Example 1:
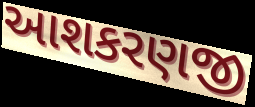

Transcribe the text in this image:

આશકરણજી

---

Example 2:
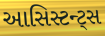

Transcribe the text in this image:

આસિસ્ટન્ટ્સ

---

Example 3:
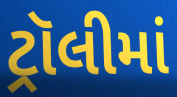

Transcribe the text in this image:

ટ્રૉલીમાં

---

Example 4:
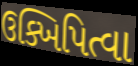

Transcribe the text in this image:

ઉક્ખિપિત્વા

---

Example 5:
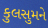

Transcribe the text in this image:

કુલસુમને